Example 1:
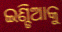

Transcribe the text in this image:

ଇଣ୍ଡିଆକୁ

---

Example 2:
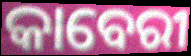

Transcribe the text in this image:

କାବେରୀ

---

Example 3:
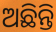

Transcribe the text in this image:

ଅଛିନ୍ତି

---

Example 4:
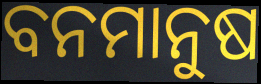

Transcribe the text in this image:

ବନମାନୁଷ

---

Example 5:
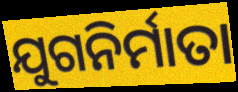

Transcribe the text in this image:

ଯୁଗନିର୍ମାତା